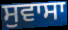
ਸੁਵਾਸਾ